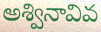
అశ్వినావివ